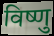
विष्णु